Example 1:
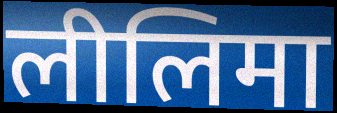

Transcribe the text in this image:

लीलिमा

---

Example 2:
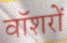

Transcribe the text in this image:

वॉशरों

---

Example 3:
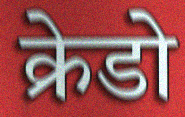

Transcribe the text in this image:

क्रेडो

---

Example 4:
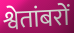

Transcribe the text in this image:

श्वेतांबरों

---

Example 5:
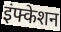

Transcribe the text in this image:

इंफ्केशन